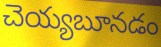
చెయ్యబూనడం